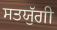
ਸਤਯੁੱਗੀ